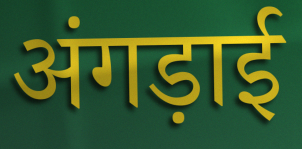
अंगड़ाई